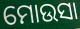
ମୋଉସା